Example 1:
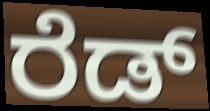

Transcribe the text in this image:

ರೆಡ್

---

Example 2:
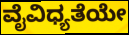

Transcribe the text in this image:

ವೈವಿಧ್ಯತೆಯೇ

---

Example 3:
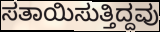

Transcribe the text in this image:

ಸತಾಯಿಸುತ್ತಿದ್ದವು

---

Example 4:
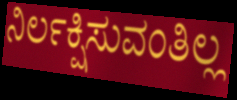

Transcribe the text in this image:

ನಿರ್ಲಕ್ಷಿಸುವಂತಿಲ್ಲ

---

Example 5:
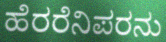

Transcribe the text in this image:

ಹೆರರೆನಿಪರನು